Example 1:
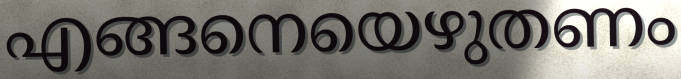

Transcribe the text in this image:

എങ്ങനെയെഴുതണം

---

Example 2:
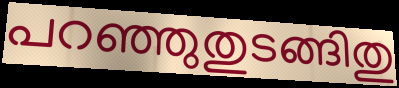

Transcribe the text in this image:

പറഞ്ഞുതുടങ്ങിതു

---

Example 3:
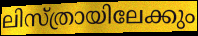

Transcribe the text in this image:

ലിസ്ത്രായിലേക്കും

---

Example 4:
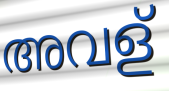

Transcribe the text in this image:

അവള്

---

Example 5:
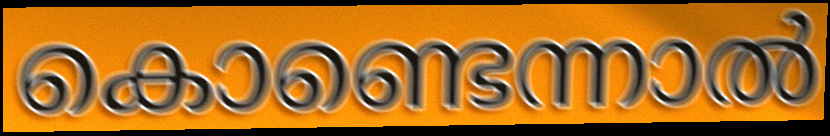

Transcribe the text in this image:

കൊണ്ടെന്നാൽ